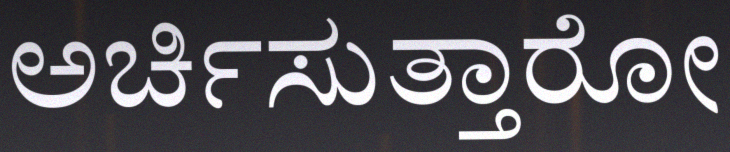
ಅರ್ಚಿಸುತ್ತಾರೋ